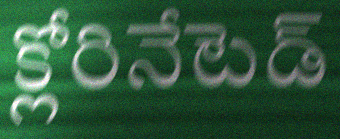
క్లోరినేటెడ్